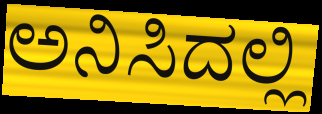
ಅನಿಸಿದಲ್ಲಿ